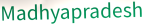
Madhyapradesh